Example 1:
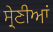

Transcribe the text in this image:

ਸ੍ਰੇਣੀਆਂ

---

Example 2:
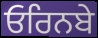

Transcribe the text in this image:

ਓਰਿਨਬੇ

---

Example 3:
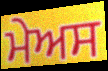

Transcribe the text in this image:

ਮੇਅਸ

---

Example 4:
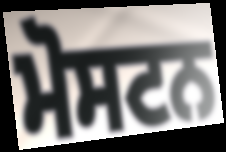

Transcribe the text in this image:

ਮੋਸਟਨ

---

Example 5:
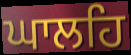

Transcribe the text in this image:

ਘਾਲਹਿ